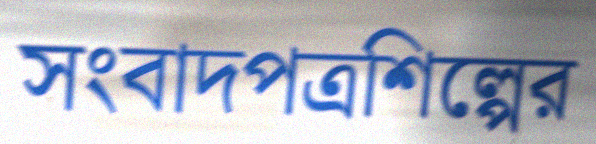
সংবাদপত্রশিল্পের